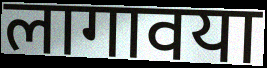
लागावया